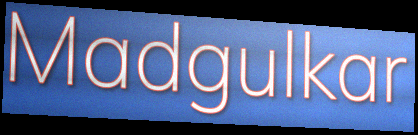
Madgulkar